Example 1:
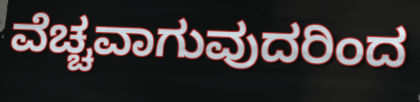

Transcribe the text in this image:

ವೆಚ್ಚವಾಗುವುದರಿಂದ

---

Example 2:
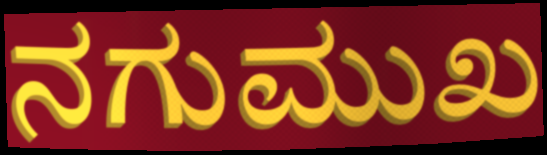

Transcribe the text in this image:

ನಗುಮುಖ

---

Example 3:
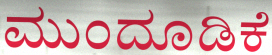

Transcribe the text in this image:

ಮುಂದೂಡಿಕೆ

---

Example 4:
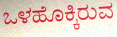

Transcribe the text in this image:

ಒಳಹೊಕ್ಕಿರುವ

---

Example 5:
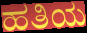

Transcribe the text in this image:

ಹತಿಯ